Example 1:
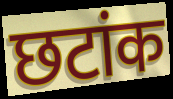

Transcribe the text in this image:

छटांक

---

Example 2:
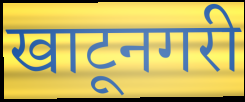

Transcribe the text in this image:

खाटूनगरी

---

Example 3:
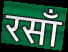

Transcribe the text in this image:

रसाँ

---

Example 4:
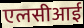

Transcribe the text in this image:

एलसीआई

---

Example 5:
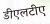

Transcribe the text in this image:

डीएलटीए